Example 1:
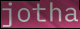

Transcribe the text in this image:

jotha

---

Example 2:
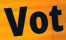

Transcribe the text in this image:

Vot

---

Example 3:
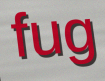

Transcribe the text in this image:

fug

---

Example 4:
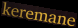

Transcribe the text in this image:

keremane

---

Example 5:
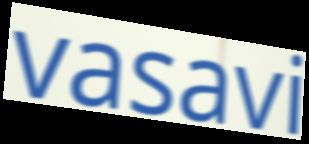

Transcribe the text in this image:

vasavi